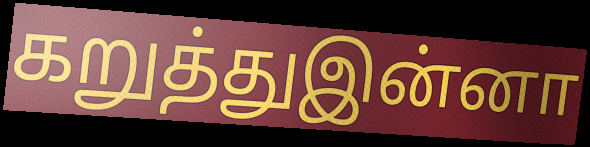
கறுத்துஇன்னா